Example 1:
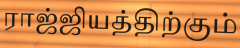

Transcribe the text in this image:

ராஜ்ஜியத்திற்கும்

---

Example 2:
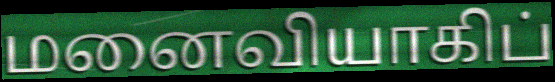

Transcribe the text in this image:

மனைவியாகிப்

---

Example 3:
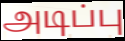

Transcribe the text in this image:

அடிப்பு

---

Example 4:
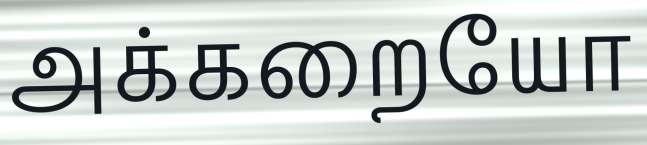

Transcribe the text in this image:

அக்கறையோ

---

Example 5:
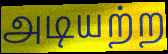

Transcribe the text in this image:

அடியற்ற